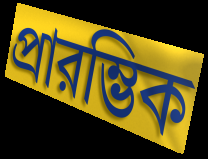
প্রারম্ভিক